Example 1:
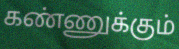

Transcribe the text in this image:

கண்ணுக்கும்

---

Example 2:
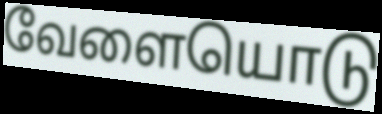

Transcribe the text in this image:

வேளையொடு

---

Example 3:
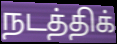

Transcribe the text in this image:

நடத்திக்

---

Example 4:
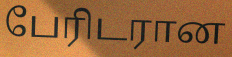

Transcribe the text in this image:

பேரிடரான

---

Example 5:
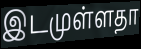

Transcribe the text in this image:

இடமுள்ளதா